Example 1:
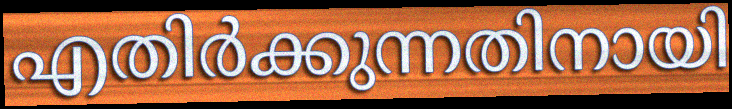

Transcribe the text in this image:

എതിർക്കുന്നതിനായി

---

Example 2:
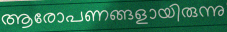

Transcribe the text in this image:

ആരോപണങ്ങളായിരുന്നു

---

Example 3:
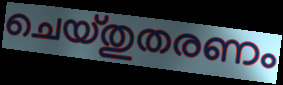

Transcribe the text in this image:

ചെയ്തുതരണം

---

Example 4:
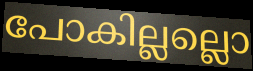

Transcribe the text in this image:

പോകില്ലല്ലൊ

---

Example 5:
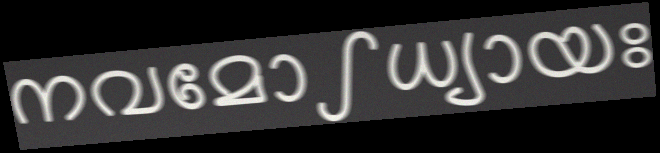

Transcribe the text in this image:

നവമോഽധ്യായഃ